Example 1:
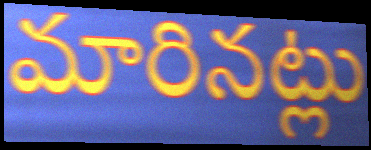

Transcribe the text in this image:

మారినట్లు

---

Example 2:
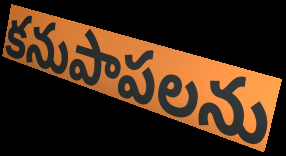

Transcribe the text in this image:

కనుపాపలను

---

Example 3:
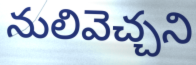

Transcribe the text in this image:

నులివెచ్చని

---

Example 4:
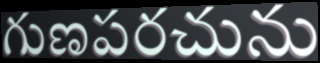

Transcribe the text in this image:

గుణపరచును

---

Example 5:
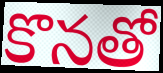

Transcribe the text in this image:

కొనతో